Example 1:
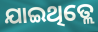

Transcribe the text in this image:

ଯାଇଥିତ୍ଲେ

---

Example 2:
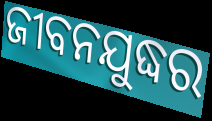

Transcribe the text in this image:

ଜୀବନଯୁଦ୍ଧର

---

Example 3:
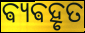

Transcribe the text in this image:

ଵ୍ଯଵହୃତ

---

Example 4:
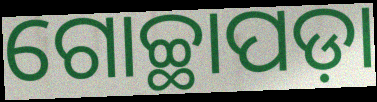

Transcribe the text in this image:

ଗୋଚ୍ଛାପଡ଼ା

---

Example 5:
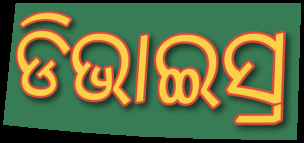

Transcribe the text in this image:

ଡିଭାଇସ୍ର